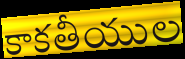
కాకతీయుల